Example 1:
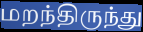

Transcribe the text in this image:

மறந்திருந்து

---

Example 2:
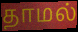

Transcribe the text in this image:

தாமல்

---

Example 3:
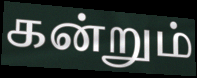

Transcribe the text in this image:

கன்றும்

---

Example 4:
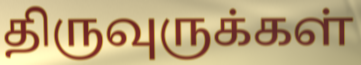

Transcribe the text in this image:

திருவுருக்கள்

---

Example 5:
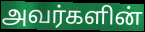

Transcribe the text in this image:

அவர்களின்